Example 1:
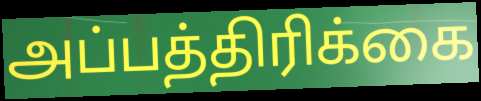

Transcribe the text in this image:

அப்பத்திரிக்கை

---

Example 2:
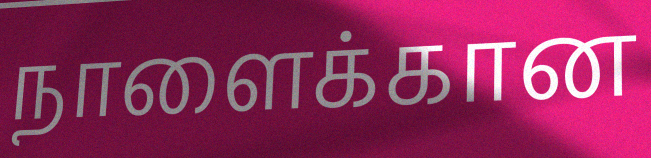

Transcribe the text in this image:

நாளைக்கான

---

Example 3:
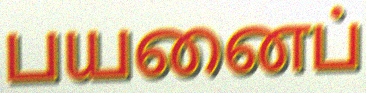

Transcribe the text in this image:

பயனைப்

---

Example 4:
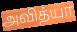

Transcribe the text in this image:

அவித்யா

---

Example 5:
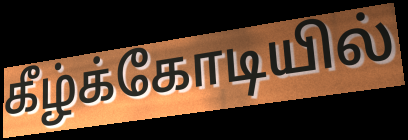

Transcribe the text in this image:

கீழ்க்கோடியில்